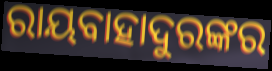
ରାୟବାହାଦୁରଙ୍କର